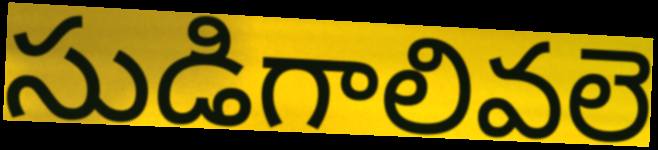
సుడిగాలివలె